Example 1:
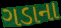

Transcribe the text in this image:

ગડાના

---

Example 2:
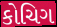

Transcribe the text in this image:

કોચિગ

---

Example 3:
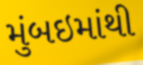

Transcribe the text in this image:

મુંબઇમાંથી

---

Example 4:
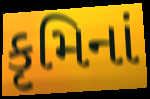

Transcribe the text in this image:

કૃમિનાં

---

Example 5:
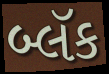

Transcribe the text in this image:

બ્લૅક